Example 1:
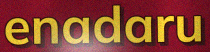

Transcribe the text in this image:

enadaru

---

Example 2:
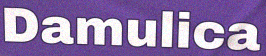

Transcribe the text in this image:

Damulica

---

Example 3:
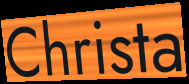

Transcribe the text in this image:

Christa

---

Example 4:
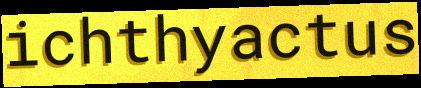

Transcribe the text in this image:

ichthyactus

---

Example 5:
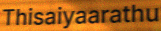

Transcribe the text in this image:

Thisaiyaarathu